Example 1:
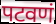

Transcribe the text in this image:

पटवणं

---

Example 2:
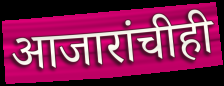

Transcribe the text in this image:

आजारांचीही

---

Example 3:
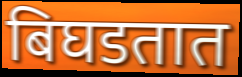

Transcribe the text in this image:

बिघडतात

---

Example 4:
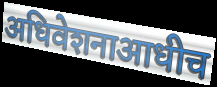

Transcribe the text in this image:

अधिवेशनाआधीच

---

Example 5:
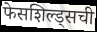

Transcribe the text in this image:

फेसशिल्ड्सची